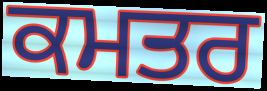
ਕਮਤਰ